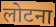
लोटना